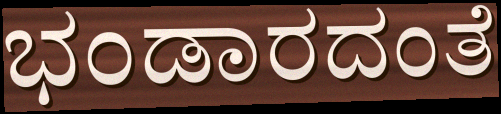
ಭಂಡಾರದಂತೆ